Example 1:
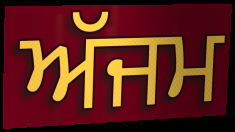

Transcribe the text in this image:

ਅੱਜਮ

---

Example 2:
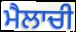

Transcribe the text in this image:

ਮੈਲਾਚੀ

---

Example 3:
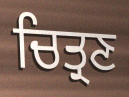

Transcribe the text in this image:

ਚਿਤ੍ਰਣ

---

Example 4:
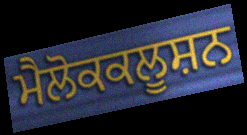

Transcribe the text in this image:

ਮੈਲੋਕਕਲੂਸ਼ਨ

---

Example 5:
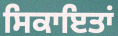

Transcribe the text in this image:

ਸਿਕਾਇਤਾਂ